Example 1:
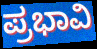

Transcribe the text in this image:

ಪ್ರಭಾವಿ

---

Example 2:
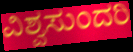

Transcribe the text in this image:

ವಿಶ್ವಸುಂದರಿ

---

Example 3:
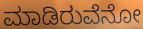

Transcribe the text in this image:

ಮಾಡಿರುವೆನೋ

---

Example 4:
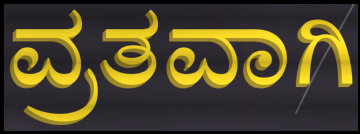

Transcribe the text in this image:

ವ್ರತವಾಗಿ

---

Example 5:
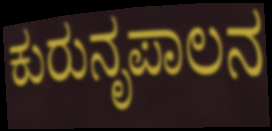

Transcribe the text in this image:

ಕುರುನೃಪಾಲನ